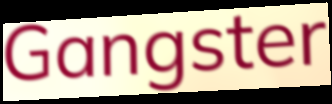
Gangster